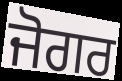
ਜੋਗਰ